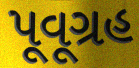
પૂવૂગ્રહ